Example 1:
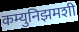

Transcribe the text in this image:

कम्युनिझमशी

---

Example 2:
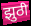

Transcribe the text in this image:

झुठी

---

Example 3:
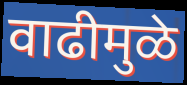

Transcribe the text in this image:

वाढीमुळे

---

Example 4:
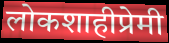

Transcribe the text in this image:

लोकशाहीप्रेमी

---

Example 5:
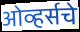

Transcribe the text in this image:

ओव्हर्सचे